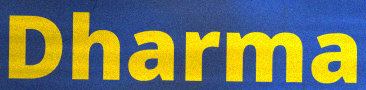
Dharma